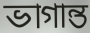
ভাগান্ত